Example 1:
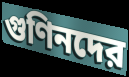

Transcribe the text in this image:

গুণিনদের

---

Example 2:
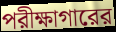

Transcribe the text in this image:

পরীক্ষাগারের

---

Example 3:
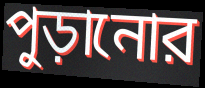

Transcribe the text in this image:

পুড়ানোর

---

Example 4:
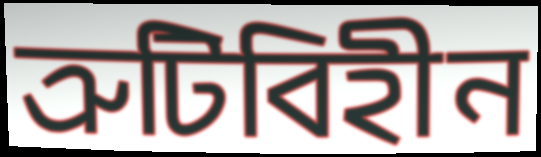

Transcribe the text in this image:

ত্রুটিবিহীন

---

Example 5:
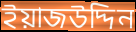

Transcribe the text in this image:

ইয়াজউদ্দিন